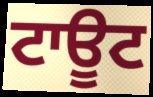
ਟਾਊਟ